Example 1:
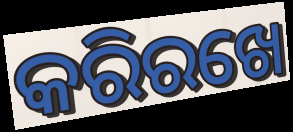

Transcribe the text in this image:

କରିରଖେ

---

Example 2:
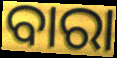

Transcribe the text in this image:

ବାରା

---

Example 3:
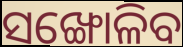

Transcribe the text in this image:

ସଙ୍ଖୋଳିବ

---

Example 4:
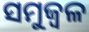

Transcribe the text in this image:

ସମୁଜ୍ୱଳ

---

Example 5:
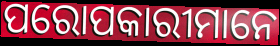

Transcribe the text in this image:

ପରୋପକାରୀମାନେ